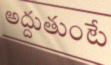
అద్దుతుంటే